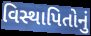
વિસ્થાપિતોનું